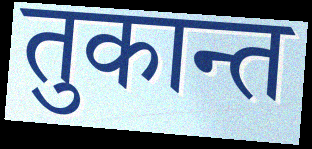
तुकान्त